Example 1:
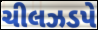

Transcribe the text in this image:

ચીલઝડપે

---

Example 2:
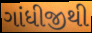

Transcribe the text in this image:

ગાંધીજીથી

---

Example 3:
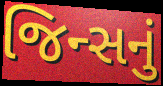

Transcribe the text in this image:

જિન્સનું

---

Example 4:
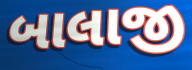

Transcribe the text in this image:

બાલાજી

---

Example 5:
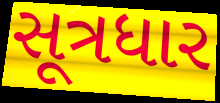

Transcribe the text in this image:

સૂત્રધાર